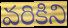
వరికిని